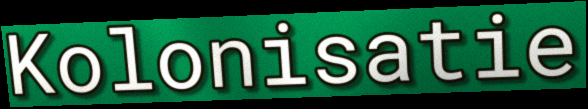
Kolonisatie